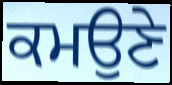
ਕਮਉਣੇ